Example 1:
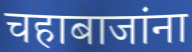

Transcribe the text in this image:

चहाबाजांना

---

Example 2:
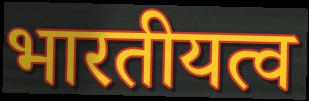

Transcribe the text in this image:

भारतीयत्व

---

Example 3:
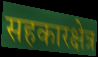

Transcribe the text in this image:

सहकारक्षेत्र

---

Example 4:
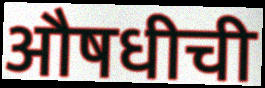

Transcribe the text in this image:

औषधीची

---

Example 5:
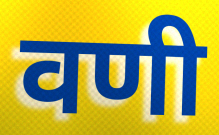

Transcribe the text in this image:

वणी